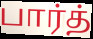
பார்த்